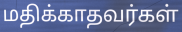
மதிக்காதவர்கள்